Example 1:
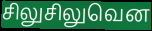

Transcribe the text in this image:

சிலுசிலுவென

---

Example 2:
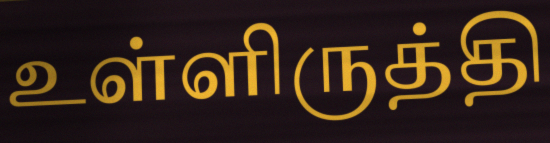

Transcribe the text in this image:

உள்ளிருத்தி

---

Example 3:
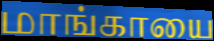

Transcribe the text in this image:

மாங்காயை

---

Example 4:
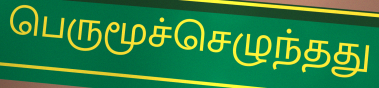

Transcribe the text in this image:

பெருமூச்செழுந்தது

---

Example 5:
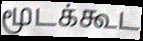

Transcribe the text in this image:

மூடக்கூட